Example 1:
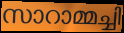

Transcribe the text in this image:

സാറാമ്മച്ചി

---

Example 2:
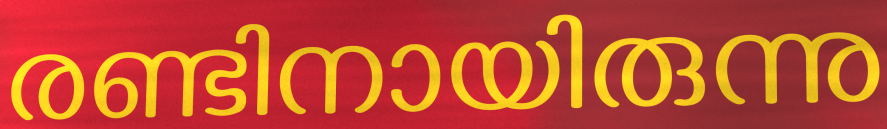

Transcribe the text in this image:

രണ്ടിനായിരുന്നു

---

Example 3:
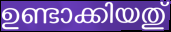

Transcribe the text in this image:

ഉണ്ടാക്കിയതു്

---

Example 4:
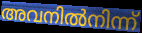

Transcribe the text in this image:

അവനിൽനിന്ന്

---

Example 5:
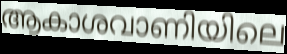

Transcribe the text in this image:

ആകാശവാണിയിലെ